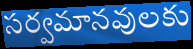
సర్వమానవులకు